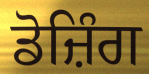
ਡੋਜ਼ਿੰਗ